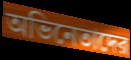
অভিনেতাদের